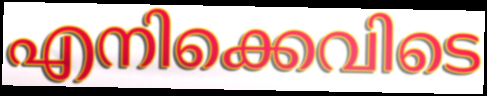
എനിക്കെവിടെ